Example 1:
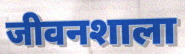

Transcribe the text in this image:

जीवनशाला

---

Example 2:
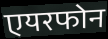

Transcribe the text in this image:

एयरफोन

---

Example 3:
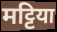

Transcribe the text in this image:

मट्टिया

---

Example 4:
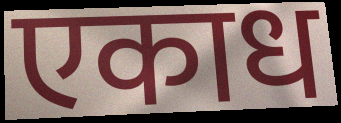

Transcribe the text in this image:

एकाध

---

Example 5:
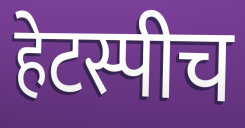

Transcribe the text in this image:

हेटस्पीच